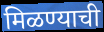
मिळण्याची